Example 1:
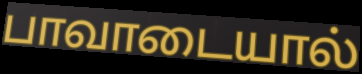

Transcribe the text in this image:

பாவாடையால்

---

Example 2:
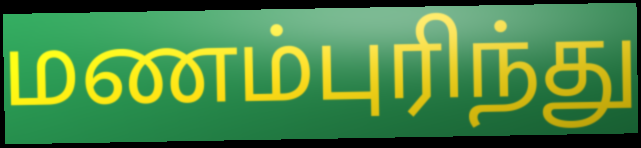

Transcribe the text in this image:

மணம்புரிந்து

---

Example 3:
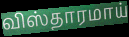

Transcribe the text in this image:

விஸ்தாரமாய்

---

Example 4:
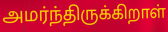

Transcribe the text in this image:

அமர்ந்திருக்கிறாள்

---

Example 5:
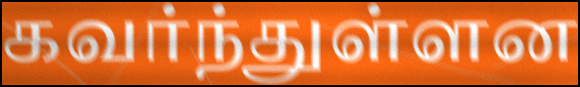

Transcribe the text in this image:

கவர்ந்துள்ளன